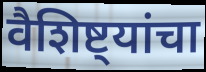
वैशिष्ट्यांचा